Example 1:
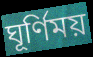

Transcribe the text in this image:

ঘূর্ণিময়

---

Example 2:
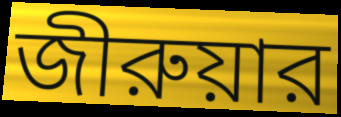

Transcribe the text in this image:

জীরুয়ার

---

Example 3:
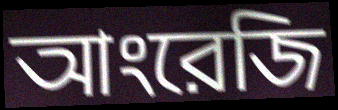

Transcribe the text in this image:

আংরেজি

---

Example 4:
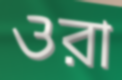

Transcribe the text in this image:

ওরা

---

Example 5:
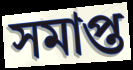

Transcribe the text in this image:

সমাপ্ত